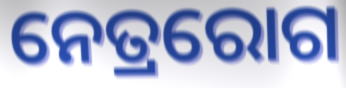
ନେତ୍ରରୋଗ